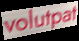
volutpat